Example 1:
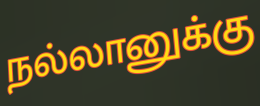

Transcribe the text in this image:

நல்லானுக்கு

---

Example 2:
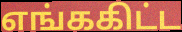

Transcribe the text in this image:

எங்ககிட்ட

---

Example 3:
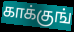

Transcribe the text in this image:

காக்குங்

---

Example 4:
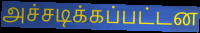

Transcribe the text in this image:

அச்சடிக்கப்பட்டன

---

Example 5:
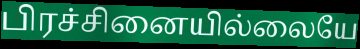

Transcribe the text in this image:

பிரச்சினையில்லையே